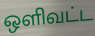
ஒளிவட்ட